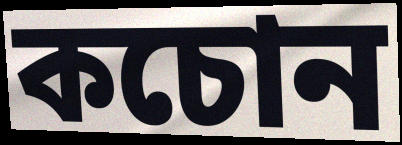
কচোন